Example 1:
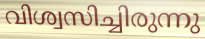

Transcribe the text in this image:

വിശ്വസിച്ചിരുന്നു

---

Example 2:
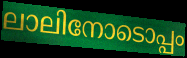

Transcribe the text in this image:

ലാലിനോടൊപ്പം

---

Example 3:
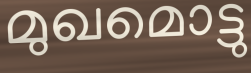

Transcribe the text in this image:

മുഖമൊട്ടു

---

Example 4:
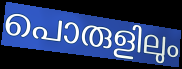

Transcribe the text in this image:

പൊരുളിലും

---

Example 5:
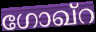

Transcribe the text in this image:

ഗോഖ്റ